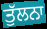
ਤੁੱਲਨਾ